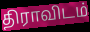
திராவிடம்